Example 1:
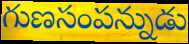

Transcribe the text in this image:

గుణసంపన్నుడు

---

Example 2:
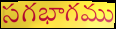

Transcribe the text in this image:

సగభాగము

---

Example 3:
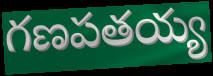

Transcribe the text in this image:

గణపతయ్య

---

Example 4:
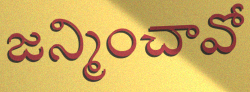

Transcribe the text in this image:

జన్మించావో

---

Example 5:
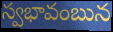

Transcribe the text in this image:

స్వభావంబున